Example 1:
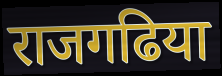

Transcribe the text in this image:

राजगढिया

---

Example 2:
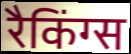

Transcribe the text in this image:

रैकिंग्स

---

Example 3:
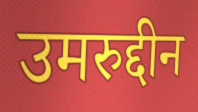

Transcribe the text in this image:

उमरुद्दीन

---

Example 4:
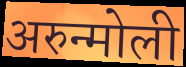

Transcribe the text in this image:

अरुन्मोली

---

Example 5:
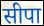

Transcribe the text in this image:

सीपा